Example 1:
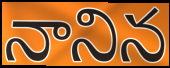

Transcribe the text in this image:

నానిన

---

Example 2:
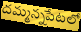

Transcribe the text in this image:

దమ్మన్నపేటలో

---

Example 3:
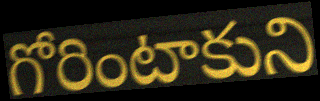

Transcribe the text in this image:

గోరింటాకుని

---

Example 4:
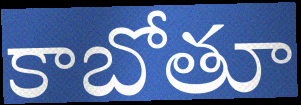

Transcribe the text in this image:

కాబోతూ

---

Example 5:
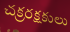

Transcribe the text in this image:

చక్రరక్షకులు